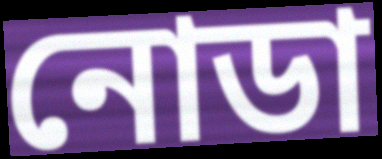
নোডা